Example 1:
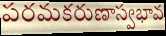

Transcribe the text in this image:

పరమకరుణాస్వభావ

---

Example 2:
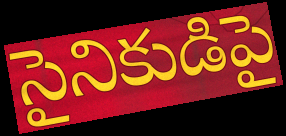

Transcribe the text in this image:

సైనికుడిపై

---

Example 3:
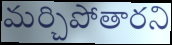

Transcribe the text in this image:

మర్చిపోతారని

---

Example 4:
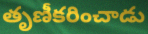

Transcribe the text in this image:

తృణీకరించాడు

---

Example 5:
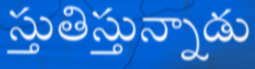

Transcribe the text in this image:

స్తుతిస్తున్నాడు